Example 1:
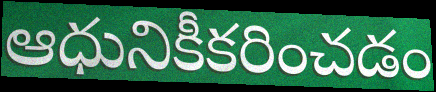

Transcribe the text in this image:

ఆధునికీకరించడం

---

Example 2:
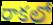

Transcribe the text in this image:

రాకలో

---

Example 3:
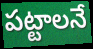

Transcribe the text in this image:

పట్టాలనే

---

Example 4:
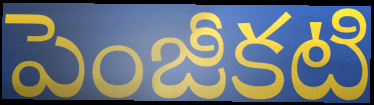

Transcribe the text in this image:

పెంజీకటి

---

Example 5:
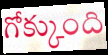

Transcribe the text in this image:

గోక్కుంది